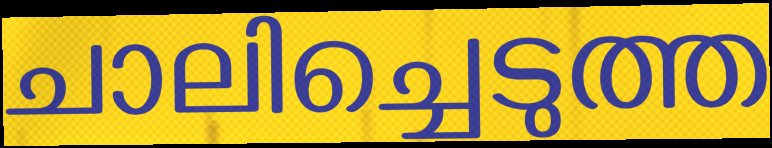
ചാലിച്ചെടുത്ത